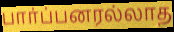
பார்ப்பனரல்லாத